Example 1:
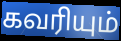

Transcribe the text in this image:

கவரியும்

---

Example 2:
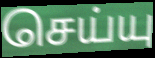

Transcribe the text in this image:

செய்யு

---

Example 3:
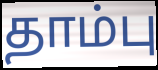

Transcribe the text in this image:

தாம்பு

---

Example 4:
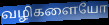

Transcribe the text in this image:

வழிகளையோ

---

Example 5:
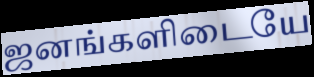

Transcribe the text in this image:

ஜனங்களிடையே